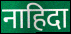
नाहिदा